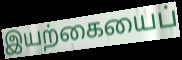
இயற்கையைப்